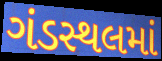
ગંડસ્થલમાં